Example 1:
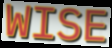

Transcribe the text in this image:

WISE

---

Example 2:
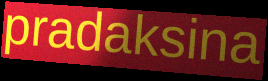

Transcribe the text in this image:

pradaksina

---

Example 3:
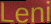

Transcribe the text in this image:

Leni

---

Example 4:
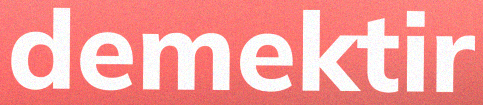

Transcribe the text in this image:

demektir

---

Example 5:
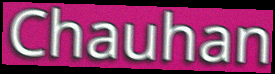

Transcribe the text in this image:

Chauhan